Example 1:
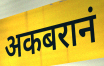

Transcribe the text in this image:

अकबरानं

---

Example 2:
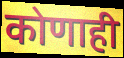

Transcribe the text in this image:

कोणाही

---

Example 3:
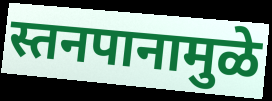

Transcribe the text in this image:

स्तनपानामुळे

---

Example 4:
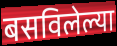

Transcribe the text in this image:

बसविलेल्या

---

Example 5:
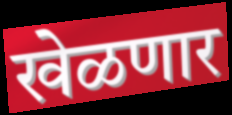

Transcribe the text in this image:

खेळणार